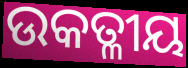
ଉକତ୍ଳୀୟ